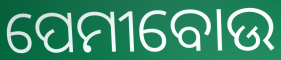
ପେମୀବୋଉ